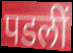
पडलीं